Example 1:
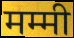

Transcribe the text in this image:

मम्‍मी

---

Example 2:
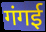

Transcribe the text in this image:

गंगई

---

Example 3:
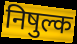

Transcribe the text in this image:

निषुल्क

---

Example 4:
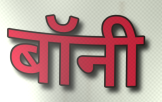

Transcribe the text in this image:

बॉनी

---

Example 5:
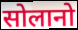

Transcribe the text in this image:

सोलानो